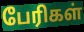
பேரிகள்